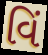
વિં